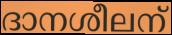
ദാനശീലന്